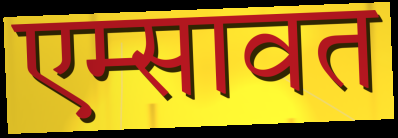
एम्सावत